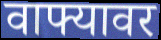
वाफ्यावर